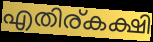
എതിര്കക്ഷി